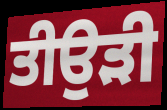
ਤੀਉੜੀ